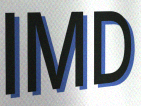
IMD